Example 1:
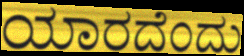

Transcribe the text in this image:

ಯಾರದೆಂದು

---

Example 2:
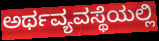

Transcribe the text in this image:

ಅರ್ಥವ್ಯವಸ್ಥೆಯಲ್ಲಿ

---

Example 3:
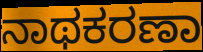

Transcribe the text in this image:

ನಾಥಕರಣಾ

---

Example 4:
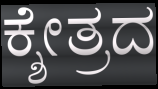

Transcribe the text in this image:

ಕ್ಶೇತ್ರದ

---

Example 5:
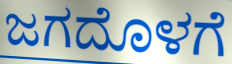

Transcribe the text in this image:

ಜಗದೊಳಗೆ